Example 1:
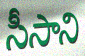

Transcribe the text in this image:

సీసాని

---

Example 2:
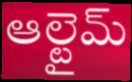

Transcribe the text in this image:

ఆల్టైమ్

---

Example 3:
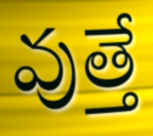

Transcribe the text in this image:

వుత్తే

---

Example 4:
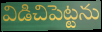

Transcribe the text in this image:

విడిచిపెట్టను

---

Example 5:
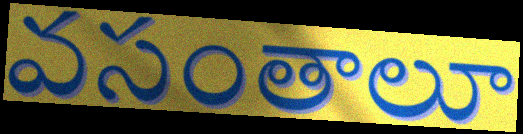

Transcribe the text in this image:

వసంతాలూ